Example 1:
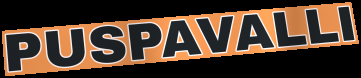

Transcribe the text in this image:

PUSPAVALLI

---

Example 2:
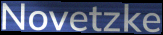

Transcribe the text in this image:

Novetzke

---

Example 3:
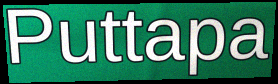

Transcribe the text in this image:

Puttapa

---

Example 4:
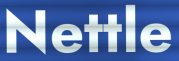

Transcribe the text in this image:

Nettle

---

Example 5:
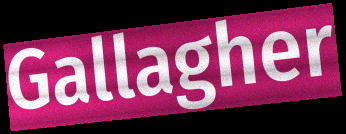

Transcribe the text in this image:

Gallagher